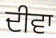
ਦੀਵਾ